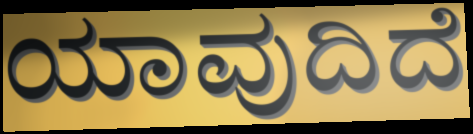
ಯಾವುದಿದೆ